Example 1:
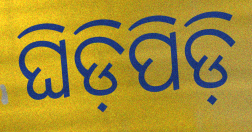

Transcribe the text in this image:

ଘିଡ଼ିପିଡ଼ି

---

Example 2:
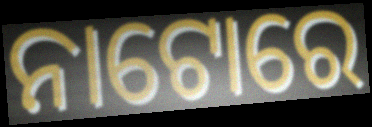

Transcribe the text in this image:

ନାଟୋରେ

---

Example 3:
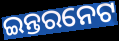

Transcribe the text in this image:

ଇନ୍ତରନେଟ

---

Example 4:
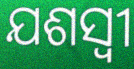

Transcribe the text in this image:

ଯଶସ୍ଵୀ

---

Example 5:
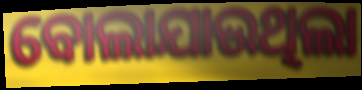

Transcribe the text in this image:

ବୋଲାଯାଉଥିଲା